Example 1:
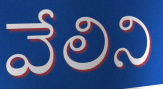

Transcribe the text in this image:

వేలిని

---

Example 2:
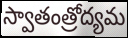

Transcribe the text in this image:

స్వాతంత్రోద్యమ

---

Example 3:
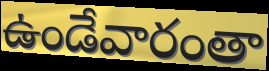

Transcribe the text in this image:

ఉండేవారంతా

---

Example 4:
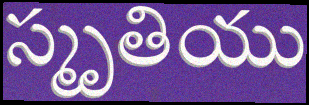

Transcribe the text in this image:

స్మృతియు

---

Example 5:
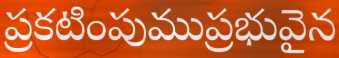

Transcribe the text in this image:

ప్రకటింపుముప్రభువైన